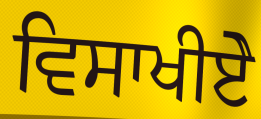
ਵਿਸਾਖੀਏੇ